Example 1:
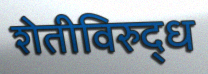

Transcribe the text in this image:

शेतीविरुद्ध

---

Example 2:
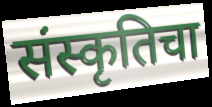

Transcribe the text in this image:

संस्कृतिचा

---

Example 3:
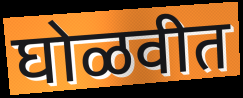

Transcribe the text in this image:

घोळवीत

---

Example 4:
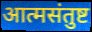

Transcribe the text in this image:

आत्मसंतुष्ट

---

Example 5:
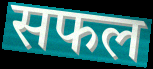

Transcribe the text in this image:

सफल